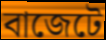
বাজেটে